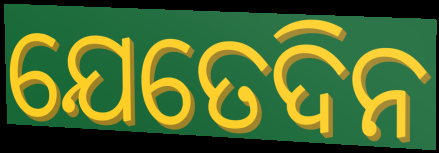
ଯେତେଦିନ